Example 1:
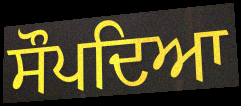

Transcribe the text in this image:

ਸੌਪਦਿਆ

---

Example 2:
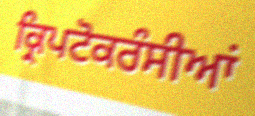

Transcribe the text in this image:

ਕ੍ਰਿਪਟੋਕਰੰਸੀਆਂ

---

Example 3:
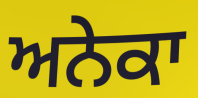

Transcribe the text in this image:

ਅਨੇਕਾ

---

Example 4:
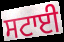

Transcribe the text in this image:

ਸਟਾਈ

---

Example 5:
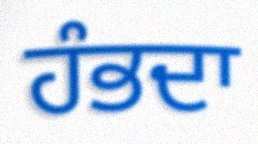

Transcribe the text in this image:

ਹੰਭਦਾ